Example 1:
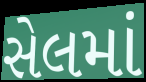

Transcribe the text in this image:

સેલમાં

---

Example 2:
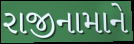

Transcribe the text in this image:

રાજીનામાને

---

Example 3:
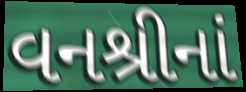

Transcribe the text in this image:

વનશ્રીનાં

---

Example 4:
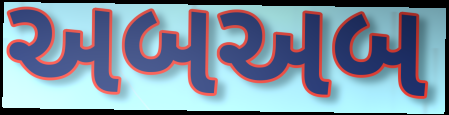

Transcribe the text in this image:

અબઅબ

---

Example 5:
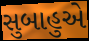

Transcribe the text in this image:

સુબાહુએ